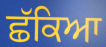
ਛੱਕਿਆ